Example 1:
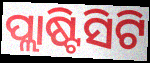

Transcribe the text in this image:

ପ୍ଲାଷ୍ଟିସିଟି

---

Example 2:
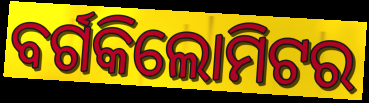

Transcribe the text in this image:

ବର୍ଗକିଲୋମିଟର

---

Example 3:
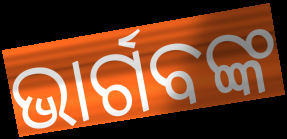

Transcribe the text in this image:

ଭାର୍ଗବଙ୍କ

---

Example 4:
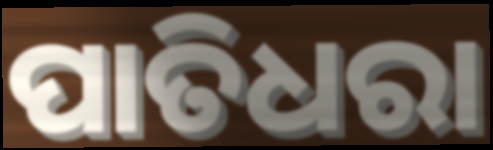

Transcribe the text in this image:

ପାତିଧରା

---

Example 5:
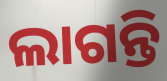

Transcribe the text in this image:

ଲାଗନ୍ତି